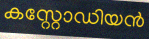
കസ്റ്റോഡിയൻ